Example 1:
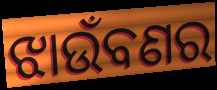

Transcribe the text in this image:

ଝାଉଁବଣର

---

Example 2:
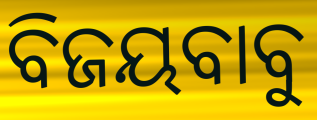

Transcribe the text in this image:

ବିଜୟବାବୁ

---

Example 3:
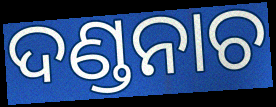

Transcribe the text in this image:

ଦଣ୍ଡନାଚ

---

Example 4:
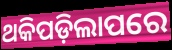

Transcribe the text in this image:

ଥକିପଡ଼ିଲାପରେ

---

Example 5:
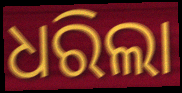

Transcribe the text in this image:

ଧରିଲା